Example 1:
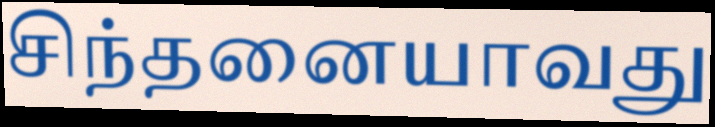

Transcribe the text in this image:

சிந்தனையாவது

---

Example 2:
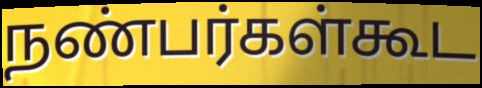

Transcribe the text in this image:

நண்பர்கள்கூட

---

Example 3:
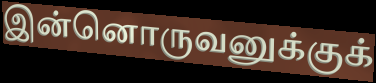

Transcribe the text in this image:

இன்னொருவனுக்குக்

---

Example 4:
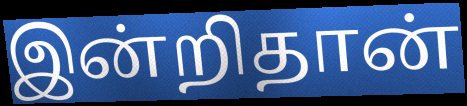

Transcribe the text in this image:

இன்றிதான்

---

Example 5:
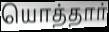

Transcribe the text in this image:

யொத்தார்